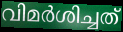
വിമർശിച്ചത്